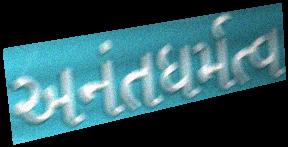
અનંતધર્મત્વ